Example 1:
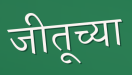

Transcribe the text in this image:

जीतूच्या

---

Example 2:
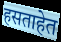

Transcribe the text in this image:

हसताहेत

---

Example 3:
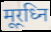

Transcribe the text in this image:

मूर्ध्नि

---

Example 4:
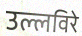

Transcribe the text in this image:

उल्लविरे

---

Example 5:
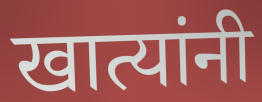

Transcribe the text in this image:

खात्यांनी